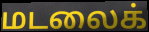
மடலைக்